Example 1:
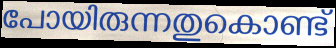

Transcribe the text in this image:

പോയിരുന്നതുകൊണ്ട്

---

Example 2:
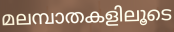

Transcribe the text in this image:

മലമ്പാതകളിലൂടെ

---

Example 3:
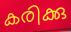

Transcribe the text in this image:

കരിക്കു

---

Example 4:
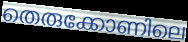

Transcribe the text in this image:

തെരുക്കോണിലെ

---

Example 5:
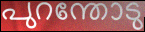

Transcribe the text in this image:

പുറന്തോടു